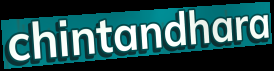
chintandhara